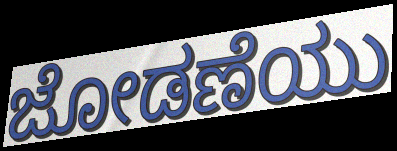
ಜೋಡಣೆಯು